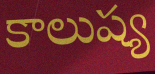
కాలుష్య